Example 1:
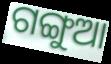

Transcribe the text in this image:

ଗଙ୍ଗୁଆ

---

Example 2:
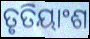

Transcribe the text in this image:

ତୃତିୟାଂଶ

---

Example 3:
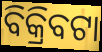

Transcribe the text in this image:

ବିକ୍ରିବଟା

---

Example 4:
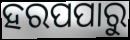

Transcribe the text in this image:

ହରପପାରୁ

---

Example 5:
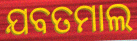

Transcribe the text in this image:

ଯବତମାଲ